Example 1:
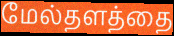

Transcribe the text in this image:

மேல்தளத்தை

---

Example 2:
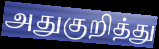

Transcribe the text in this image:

அதுகுறித்து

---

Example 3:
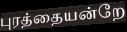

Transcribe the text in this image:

புரத்தையன்றே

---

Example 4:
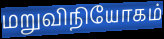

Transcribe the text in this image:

மறுவிநியோகம்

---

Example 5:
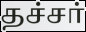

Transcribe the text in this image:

தச்சர்